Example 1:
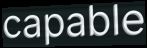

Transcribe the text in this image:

capable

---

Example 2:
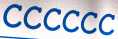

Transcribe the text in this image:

CCCCCC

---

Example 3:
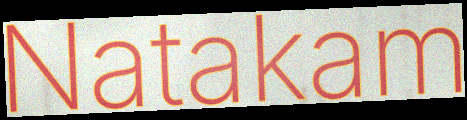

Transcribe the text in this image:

Natakam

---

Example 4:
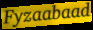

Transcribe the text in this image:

Fyzaabaad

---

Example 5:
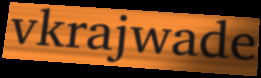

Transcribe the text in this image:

vkrajwade